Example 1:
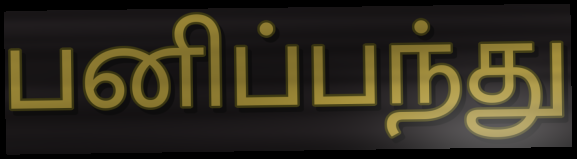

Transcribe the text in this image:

பனிப்பந்து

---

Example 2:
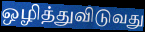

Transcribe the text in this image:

ஒழித்துவிடுவது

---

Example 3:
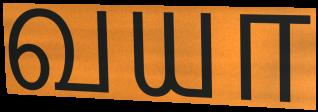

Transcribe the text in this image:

வயா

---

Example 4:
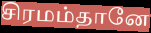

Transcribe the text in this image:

சிரமம்தானே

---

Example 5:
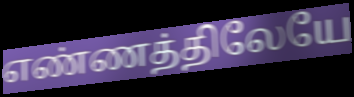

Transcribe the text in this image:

எண்ணத்திலேயே